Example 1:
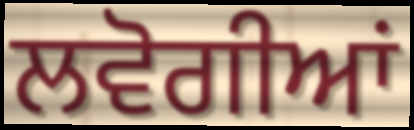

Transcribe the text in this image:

ਲਵੋਗੀਆਂ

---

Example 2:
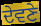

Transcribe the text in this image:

ਦੇਵਣੇ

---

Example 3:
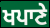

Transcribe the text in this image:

ਖਪਾਣੇ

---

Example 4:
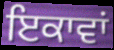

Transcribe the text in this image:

ਇਕਾਵਾਂ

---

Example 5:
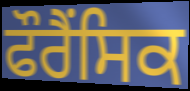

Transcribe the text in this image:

ਫੌਰੈਂਸਿਕ